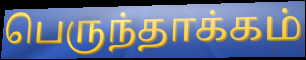
பெருந்தாக்கம்